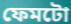
ফেমটো